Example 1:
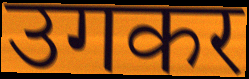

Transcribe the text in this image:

उगकर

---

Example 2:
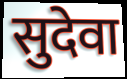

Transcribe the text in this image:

सुदेवा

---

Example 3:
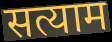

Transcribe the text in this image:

सत्याम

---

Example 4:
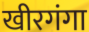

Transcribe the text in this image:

खीरगंगा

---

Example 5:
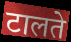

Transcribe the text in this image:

टालते